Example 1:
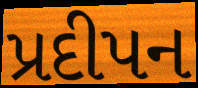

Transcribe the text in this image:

પ્રદીપન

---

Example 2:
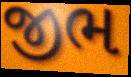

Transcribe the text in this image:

જીભ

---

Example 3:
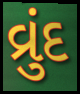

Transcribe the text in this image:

વ્રુંદ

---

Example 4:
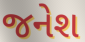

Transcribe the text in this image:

જનેશ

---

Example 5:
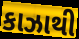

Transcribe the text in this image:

કાઝાથી